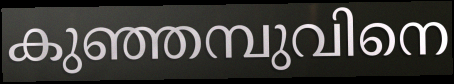
കുഞ്ഞമ്പുവിനെ